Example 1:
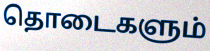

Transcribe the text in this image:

தொடைகளும்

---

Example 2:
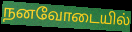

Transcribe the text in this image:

நனவோடையில்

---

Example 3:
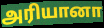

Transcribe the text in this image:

அரியானா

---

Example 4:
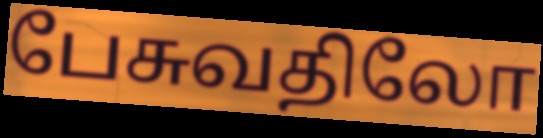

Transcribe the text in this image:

பேசுவதிலோ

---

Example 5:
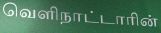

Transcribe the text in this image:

வெளிநாட்டாரின்